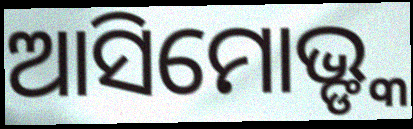
ଆସିମୋଭ୍ଙ୍କ